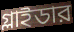
গ্লাইডার